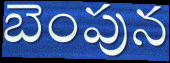
బెంపున